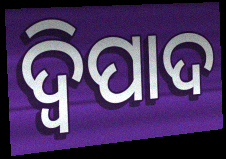
ଦ୍ୱିପାଦ